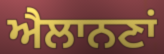
ਐਲਾਨਣਾਂ